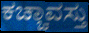
ಕಚ್ಚಾವಸ್ತು